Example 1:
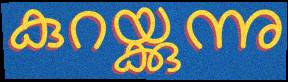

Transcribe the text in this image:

കുറയ്ക്കുന്നു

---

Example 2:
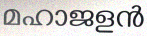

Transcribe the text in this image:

മഹാജളൻ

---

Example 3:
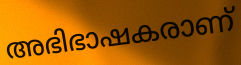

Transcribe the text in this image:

അഭിഭാഷകരാണ്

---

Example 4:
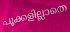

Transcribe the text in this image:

പൂക്കളില്ലാതെ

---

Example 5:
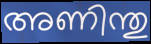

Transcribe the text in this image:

അണിന്തു